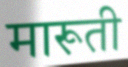
मारूती